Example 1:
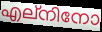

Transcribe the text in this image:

എല്നിനോ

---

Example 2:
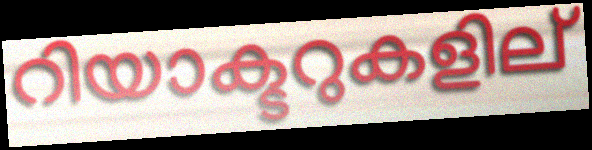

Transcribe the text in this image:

റിയാക്ടറുകളില്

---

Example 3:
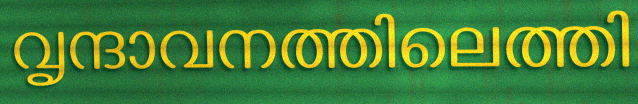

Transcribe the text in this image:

വൃന്ദാവനത്തിലെത്തി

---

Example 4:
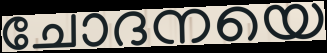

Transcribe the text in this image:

ചോദനയെ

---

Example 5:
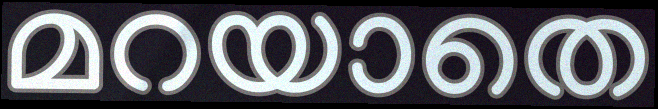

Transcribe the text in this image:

മറയാതെ